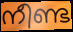
നീണ്ട